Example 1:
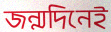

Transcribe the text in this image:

জন্মদিনেই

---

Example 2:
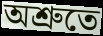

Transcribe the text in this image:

অশ্রুতে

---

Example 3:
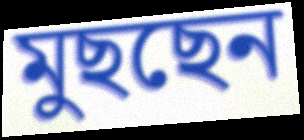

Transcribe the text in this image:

মুছছেন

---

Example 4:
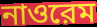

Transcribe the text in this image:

নাওরেম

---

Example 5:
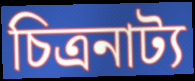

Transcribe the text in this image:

চিত্রনাট্য